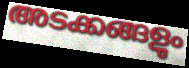
അടക്കങ്ങളും